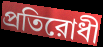
প্রতিরোধী